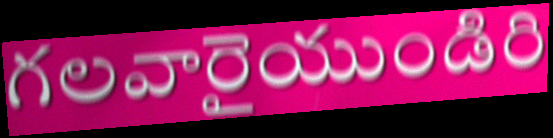
గలవారైయుండిరి